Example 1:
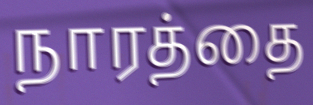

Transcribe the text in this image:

நாரத்தை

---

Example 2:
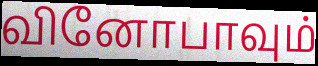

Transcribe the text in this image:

வினோபாவும்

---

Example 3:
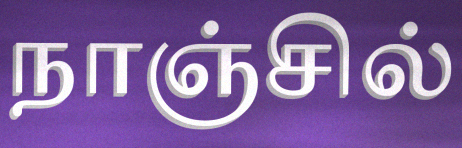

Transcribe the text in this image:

நாஞ்சில்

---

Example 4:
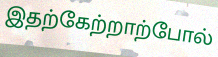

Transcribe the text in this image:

இதற்கேற்றாற்போல்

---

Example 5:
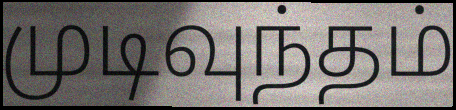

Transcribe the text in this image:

முடிவுந்தம்